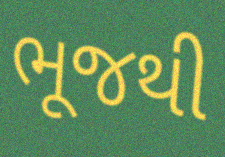
ભૂજથી